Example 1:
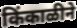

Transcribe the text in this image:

किंकाळीने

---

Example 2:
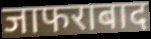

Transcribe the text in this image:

जाफराबाद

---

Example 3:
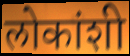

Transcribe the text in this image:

लोकांशी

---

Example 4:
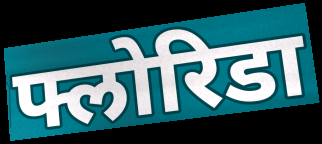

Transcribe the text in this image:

फ्लोरिडा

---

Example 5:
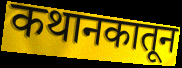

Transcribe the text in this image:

कथानकातून